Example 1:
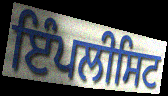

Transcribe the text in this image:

ਇੰਪਲੀਸਿਟ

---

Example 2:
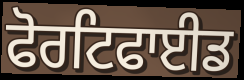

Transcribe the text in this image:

ਫੋਰਟਿਫਾਈਡ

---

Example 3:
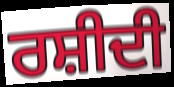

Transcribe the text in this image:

ਰਸ਼ੀਦੀ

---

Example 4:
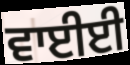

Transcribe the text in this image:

ਵਾਈਈ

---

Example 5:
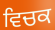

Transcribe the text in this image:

ਵਿਚਕ